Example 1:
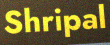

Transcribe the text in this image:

Shripal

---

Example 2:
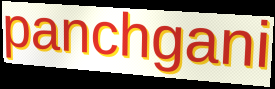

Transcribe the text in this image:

panchgani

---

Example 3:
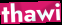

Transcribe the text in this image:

thawi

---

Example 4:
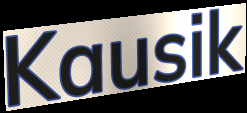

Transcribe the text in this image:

Kausik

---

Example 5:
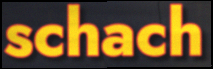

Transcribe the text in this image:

schach